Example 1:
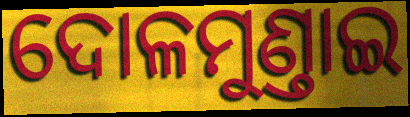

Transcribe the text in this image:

ଦୋଳମୁଣ୍ତାଇ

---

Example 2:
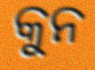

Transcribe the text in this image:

କୁନ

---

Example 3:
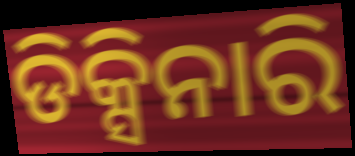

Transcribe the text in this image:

ଡିକ୍ସିନାରି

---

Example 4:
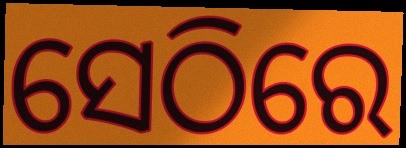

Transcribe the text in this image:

ସେଠିରେ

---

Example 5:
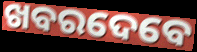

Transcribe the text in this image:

ଖବରଦେବେ